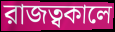
রাজত্বকালে